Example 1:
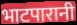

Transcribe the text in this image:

भाटपारानी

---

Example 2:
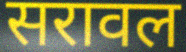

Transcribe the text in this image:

सरावल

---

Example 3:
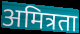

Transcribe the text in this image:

अमित्रता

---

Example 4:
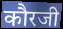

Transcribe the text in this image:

कौरजी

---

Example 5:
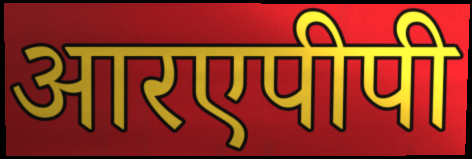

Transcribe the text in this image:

आरएपीपी